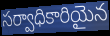
సర్వాధికారియైన